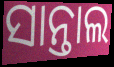
ସାନ୍ତାଲ